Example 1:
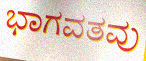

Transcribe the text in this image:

ಭಾಗವತವು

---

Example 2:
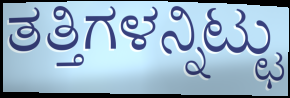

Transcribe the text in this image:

ತತ್ತಿಗಳನ್ನಿಟ್ಟು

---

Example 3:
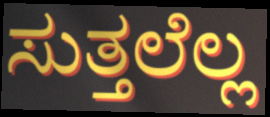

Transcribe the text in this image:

ಸುತ್ತಲೆಲ್ಲ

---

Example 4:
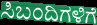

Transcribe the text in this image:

ಸಿಬಂದಿಗಳಿಗೆ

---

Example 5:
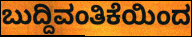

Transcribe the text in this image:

ಬುದ್ದಿವಂತಿಕೆಯಿಂದ